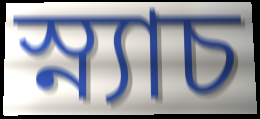
স্ন্যাচ